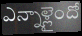
ఎన్నాళ్లైందో